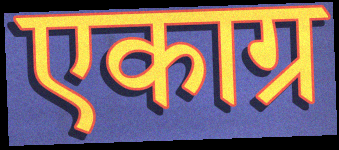
एकाग्र